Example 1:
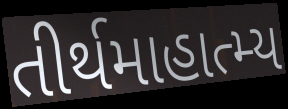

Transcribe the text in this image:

તીર્થમાહાત્મ્ય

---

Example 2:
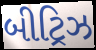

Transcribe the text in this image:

બીટ્રિઝ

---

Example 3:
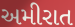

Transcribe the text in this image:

અમીરાત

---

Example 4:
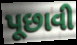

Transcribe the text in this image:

પૂછાવી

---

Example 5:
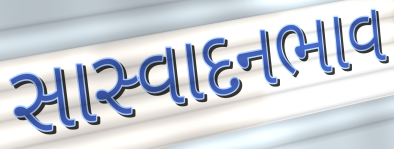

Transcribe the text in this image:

સાસ્વાદનભાવ